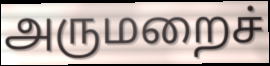
அருமறைச்